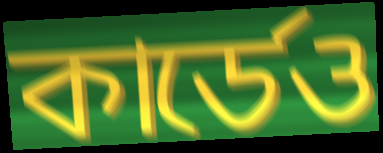
কার্ডেও